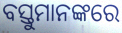
ବସ୍ତୁମାନଙ୍କରେ